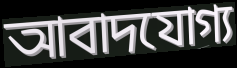
আবাদযোগ্য